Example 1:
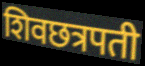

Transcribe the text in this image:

शिवछत्रपती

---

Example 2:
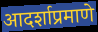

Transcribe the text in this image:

आदर्शाप्रमाणे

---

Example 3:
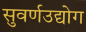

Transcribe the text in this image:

सुवर्णउद्योग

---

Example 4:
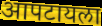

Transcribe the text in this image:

आपटायला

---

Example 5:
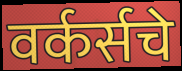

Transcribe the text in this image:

वर्कर्सचे